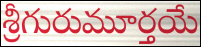
శ్రీగురుమూర్తయే